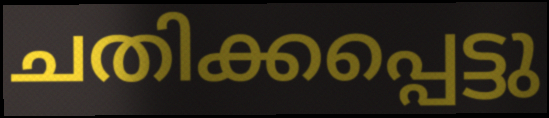
ചതിക്കപ്പെട്ടു